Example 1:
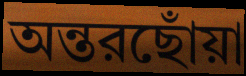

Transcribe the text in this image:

অন্তরছোঁয়া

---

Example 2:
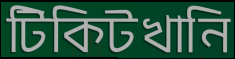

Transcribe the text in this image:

টিকিটখানি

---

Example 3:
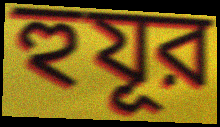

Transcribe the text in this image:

হুযূর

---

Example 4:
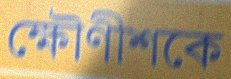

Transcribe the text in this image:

ক্ষৌণীশকে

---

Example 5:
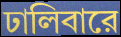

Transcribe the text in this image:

ঢালিবারে